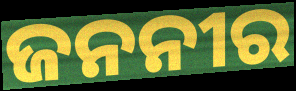
ଜନନୀର